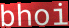
bhoi